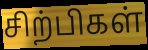
சிற்பிகள்